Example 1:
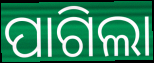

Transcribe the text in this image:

ପାଗିଲା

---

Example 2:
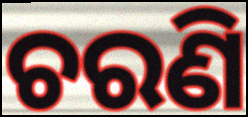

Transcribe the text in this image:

ଚରଣି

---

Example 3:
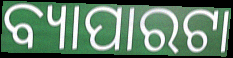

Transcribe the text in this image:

ବ୍ୟାପାରଟା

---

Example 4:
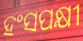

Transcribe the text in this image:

ହଂସପକ୍ଷୀ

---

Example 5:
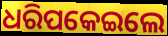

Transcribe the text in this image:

ଧରିପକେଇଲେ